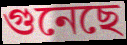
গুনেছে